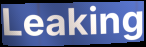
Leaking